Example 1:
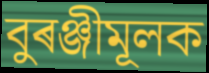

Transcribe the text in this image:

বুৰঞ্জীমূলক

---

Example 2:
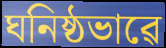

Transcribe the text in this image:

ঘনিষ্ঠভাৱে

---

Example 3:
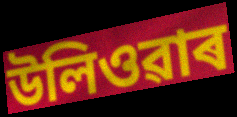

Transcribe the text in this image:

উলিওৱাৰ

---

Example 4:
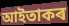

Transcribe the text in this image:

আইতাকৰ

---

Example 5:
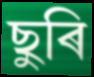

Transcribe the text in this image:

ছুৰি